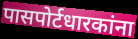
पासपोर्टधारकांना